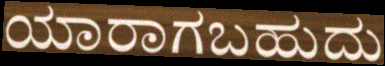
ಯಾರಾಗಬಹುದು